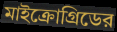
মাইক্রোগ্রিডের